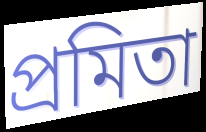
প্রমিতা